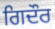
ਗਿਦੌਰ